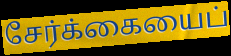
சேர்க்கையைப்